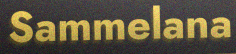
Sammelana